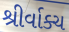
શ્રીર્વાક્ચ